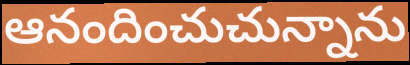
ఆనందించుచున్నాను